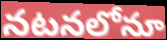
నటనలోనూ